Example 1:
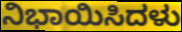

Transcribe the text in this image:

ನಿಭಾಯಿಸಿದಳು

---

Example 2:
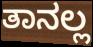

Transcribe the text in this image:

ತಾನಲ್ಲ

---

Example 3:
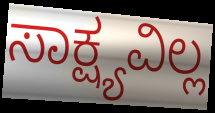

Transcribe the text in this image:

ಸಾಕ್ಷ್ಯವಿಲ್ಲ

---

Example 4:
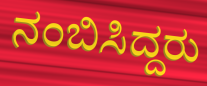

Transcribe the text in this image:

ನಂಬಿಸಿದ್ದರು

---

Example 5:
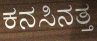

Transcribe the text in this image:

ಕನಸಿನತ್ತ